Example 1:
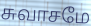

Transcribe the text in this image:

சுவாசமே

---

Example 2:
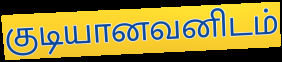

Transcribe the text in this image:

குடியானவனிடம்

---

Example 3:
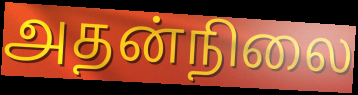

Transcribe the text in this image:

அதன்நிலை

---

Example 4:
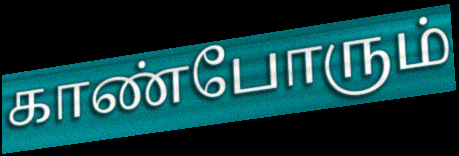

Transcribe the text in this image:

காண்போரும்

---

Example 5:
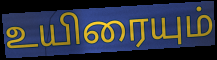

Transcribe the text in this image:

உயிரையும்